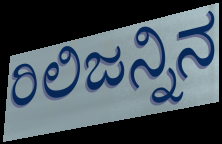
ರಿಲಿಜನ್ನಿನ